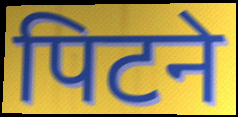
पिटने